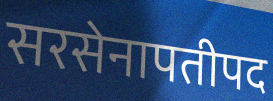
सरसेनापतीपद